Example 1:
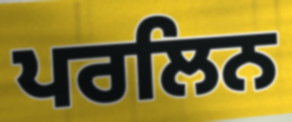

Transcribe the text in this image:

ਪਰਲਿਨ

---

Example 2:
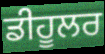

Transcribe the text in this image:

ਡੀਹੂਲਰ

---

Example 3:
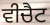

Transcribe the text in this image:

ਵੀਚੈਟ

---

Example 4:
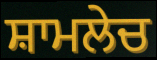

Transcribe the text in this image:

ਸ਼ਾਮਲੇਚ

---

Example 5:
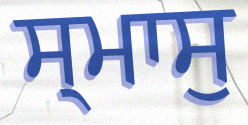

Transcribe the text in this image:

ਸ੍ਮਾਸੁ